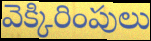
వెక్కిరింపులు